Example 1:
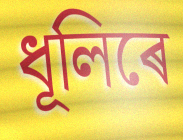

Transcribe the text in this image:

ধূলিৰে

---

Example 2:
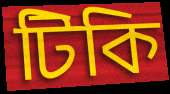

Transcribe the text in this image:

টিকি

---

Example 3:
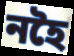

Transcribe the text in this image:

নহৈ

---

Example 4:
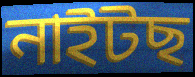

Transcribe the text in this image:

নাইটছ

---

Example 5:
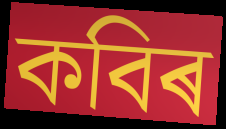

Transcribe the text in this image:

কবিৰ